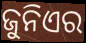
ଜୁନିଏର